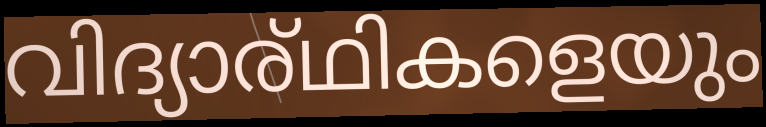
വിദ്യാര്ഥികളെയും